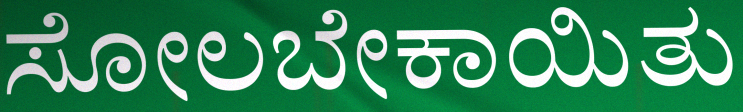
ಸೋಲಬೇಕಾಯಿತು